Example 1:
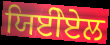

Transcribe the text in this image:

ਯਿਈੇਏਲ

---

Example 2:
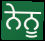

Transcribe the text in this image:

ਨੇਨੂ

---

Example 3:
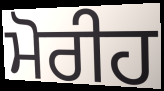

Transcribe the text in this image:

ਮੋਰੀਹ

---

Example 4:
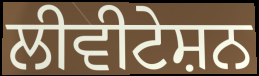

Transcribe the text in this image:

ਲੀਵੀਟੇਸ਼ਨ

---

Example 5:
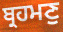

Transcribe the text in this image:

ਬ੍ਰਹਮਣੁ